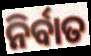
ନିର୍ବାତ